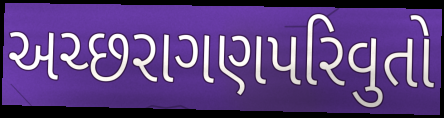
અચ્છરાગણપરિવુતો